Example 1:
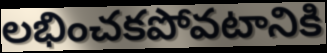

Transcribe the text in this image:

లభించకపోవటానికి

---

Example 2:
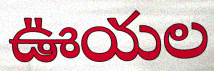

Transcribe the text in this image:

ఊయల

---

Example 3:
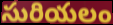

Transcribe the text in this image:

సురియలం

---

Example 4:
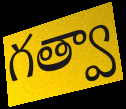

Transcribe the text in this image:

గత్వా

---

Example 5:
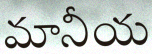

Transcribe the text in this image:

మానీయ